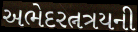
અભેદરત્નત્રયની